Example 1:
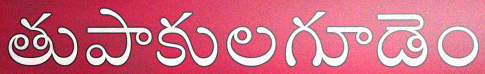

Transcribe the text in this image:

తుపాకులగూడెం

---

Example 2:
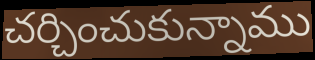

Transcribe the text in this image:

చర్చించుకున్నాము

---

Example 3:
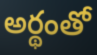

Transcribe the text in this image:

అర్థంతో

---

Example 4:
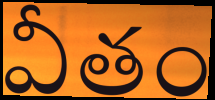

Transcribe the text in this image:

వీతం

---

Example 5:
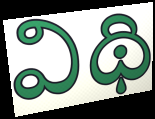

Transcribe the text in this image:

విథి